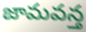
జామవన్త